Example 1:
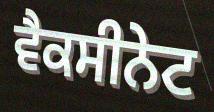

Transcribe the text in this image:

ਵੈਕਸੀਨੇਟ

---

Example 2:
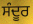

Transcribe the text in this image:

ਸੰਦੂਰ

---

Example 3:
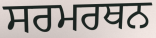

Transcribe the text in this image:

ਸਰਮਰਥਨ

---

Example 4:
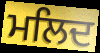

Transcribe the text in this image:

ਮਲਿਦ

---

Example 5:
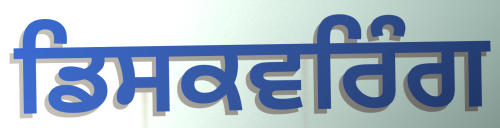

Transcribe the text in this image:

ਡਿਸਕਵਰਿੰਗ